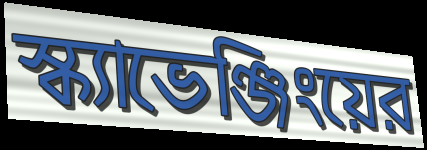
স্ক্যাভেঞ্জিংয়ের